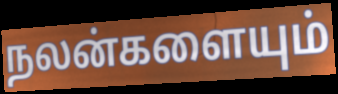
நலன்களையும்